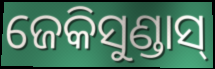
ଜେକିସୁଣ୍ଡାସ୍